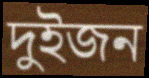
দুইজন